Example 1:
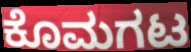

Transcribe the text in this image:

ಕೊಮಗಟ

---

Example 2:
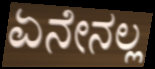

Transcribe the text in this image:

ಏನೇನಲ್ಲ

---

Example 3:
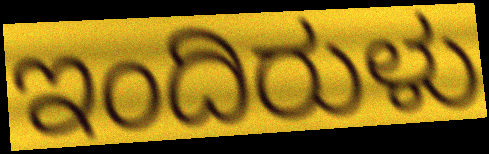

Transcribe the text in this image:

ಇಂದಿರುಳು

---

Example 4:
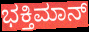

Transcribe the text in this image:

ಭಕ್ತಿಮಾನ್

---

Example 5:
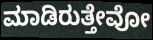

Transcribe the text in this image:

ಮಾಡಿರುತ್ತೇವೋ